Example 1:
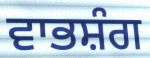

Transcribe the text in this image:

ਵਾਭਸ਼ੰਗ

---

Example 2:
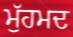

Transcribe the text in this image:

ਮੁੱਹਮਦ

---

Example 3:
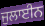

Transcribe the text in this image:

ਜੁਲਾਈਨ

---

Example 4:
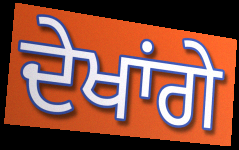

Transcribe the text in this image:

ਦੇਖਾਂਗੇ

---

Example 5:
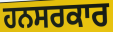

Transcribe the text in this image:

ਹਨਸਰਕਾਰ